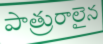
పాత్రురాలైన